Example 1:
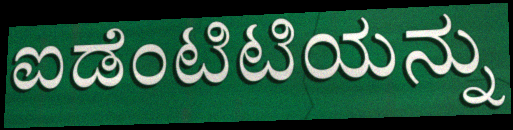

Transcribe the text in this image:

ಐಡೆಂಟಿಟಿಯನ್ನು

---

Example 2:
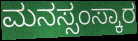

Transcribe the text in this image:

ಮನಸ್ಸಂಸ್ಕಾರ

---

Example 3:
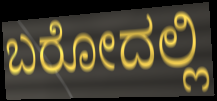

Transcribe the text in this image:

ಬರೋದಲ್ಲಿ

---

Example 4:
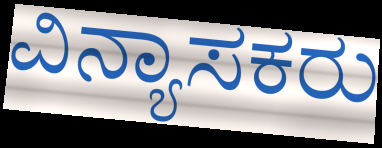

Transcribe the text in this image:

ವಿನ್ಯಾಸಕರು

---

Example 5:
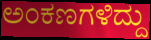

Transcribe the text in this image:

ಅಂಕಣಗಳಿದ್ದು